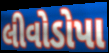
લીવોડોપા